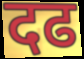
दढ